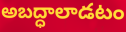
అబద్ధాలాడటం